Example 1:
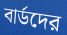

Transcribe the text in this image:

বার্ডদের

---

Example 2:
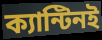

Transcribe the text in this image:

ক্যান্টিনই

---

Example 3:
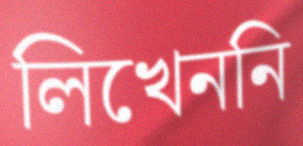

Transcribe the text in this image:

লিখেননি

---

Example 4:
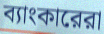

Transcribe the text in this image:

ব্যাংকারেরা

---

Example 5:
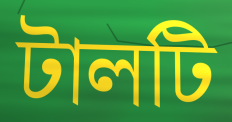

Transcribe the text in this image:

টালটি